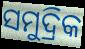
ସମୁଦ୍ରିକ